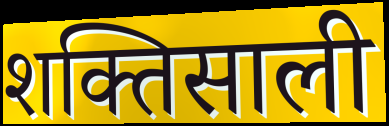
शक्तिसाली